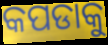
କପଡାକୁ